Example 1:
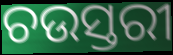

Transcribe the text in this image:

ଚଉସ୍ତରୀ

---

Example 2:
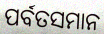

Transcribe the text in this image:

ପର୍ବତସମାନ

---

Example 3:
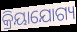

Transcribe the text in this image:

କ୍ରିୟାଯୋଗ୍ୟ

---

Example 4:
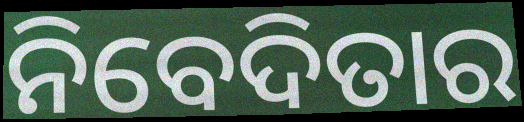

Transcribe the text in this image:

ନିବେଦିତାର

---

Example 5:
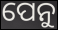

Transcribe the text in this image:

ପେନୁ